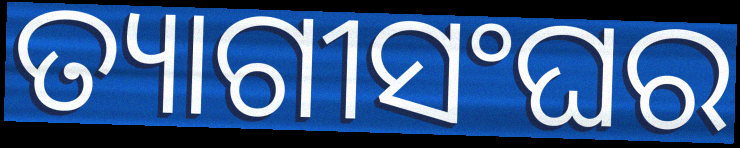
ତ୍ୟାଗୀସଂଘର